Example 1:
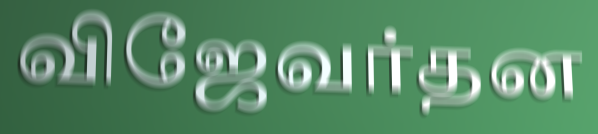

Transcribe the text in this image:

விஜேவர்தன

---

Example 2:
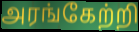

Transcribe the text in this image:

அரங்கேற்றி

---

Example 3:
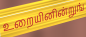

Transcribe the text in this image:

உறையினின்றுங்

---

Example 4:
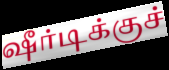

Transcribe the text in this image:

ஷீர்டிக்குச்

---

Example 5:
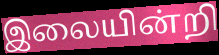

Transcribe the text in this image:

இலையின்றி